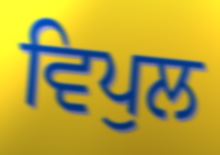
ਵਿਪੁਲ